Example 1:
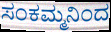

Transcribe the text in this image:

ಸಂಕಮ್ಮನಿಂದ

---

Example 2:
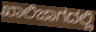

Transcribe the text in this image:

ಖಾಲಿಜಾಗದಲ್ಲಿ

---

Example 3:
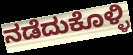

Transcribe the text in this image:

ನಡೆದುಕೊಳ್ಳಿ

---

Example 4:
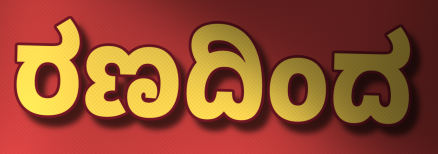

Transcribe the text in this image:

ರಣದಿಂದ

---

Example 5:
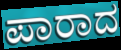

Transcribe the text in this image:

ಪಾರಾದ